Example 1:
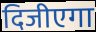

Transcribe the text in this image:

दिजीएगा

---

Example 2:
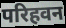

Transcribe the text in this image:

परिहवन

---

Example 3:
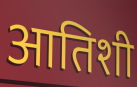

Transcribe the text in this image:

आतिशी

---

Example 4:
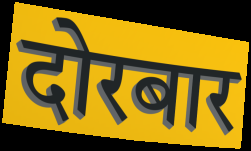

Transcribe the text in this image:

दोरबार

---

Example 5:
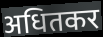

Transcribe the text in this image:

अधितकर